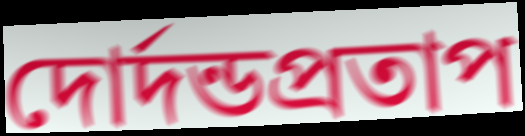
দোর্দন্ডপ্রতাপ